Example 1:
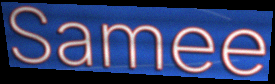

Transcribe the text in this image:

Samee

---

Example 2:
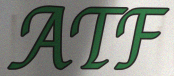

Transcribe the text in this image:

ATF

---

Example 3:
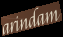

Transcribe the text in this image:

arindam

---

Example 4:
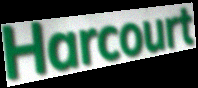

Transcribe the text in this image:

Harcourt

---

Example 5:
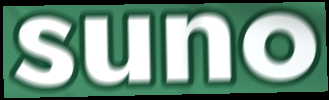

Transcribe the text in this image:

suno